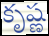
కృష్ణ